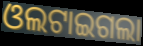
ଓଲଟାଇଗଲା